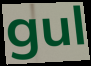
gul